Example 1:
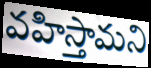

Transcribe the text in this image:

వహిస్తామని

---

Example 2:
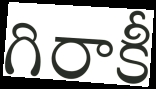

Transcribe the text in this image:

గిరాకీ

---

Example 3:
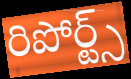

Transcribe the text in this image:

రిపోర్ట్స్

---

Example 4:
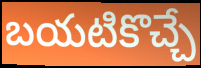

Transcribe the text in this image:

బయటికొచ్చే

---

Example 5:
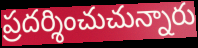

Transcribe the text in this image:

ప్రదర్శించుచున్నారు